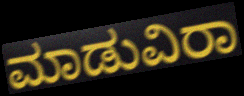
ಮಾಡುವಿರಾ